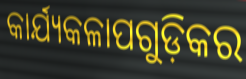
କାର୍ଯ୍ୟକଳାପଗୁଡ଼ିକର